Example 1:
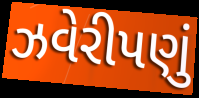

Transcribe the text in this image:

ઝવેરીપણું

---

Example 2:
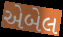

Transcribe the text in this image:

એબેલ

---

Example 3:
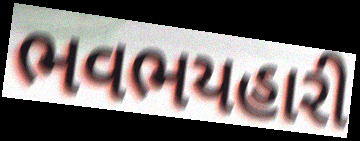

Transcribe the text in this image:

ભવભયહારી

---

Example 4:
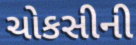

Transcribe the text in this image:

ચોકસીની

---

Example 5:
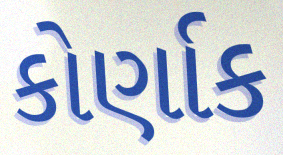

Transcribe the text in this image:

કોર્ણાક